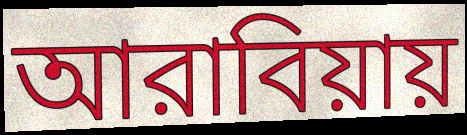
আরাবিয়ায়